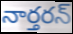
నార్తరన్